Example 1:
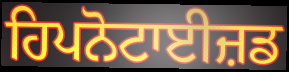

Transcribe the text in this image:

ਹਿਪਨੋਟਾਈਜ਼ਡ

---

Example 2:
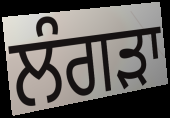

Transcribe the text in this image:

ਲੰਗੜਾ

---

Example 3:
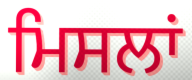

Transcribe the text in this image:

ਮਿਸਲਾਂ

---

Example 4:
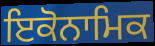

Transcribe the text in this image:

ਇਕੋਨਾਮਿਕ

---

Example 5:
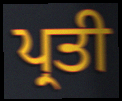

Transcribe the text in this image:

ਪ੍ਰਤੀ